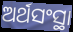
ଅର୍ଥସଂସ୍ଥା